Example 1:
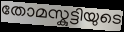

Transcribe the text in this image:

തോമസ്കുട്ടിയുടെ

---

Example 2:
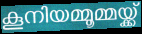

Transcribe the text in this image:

കൂനിയമ്മൂമ്മയ്ക്ക്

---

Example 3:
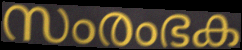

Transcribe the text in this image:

സംരംഭക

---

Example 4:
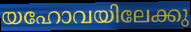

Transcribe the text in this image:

യഹോവയിലേക്കു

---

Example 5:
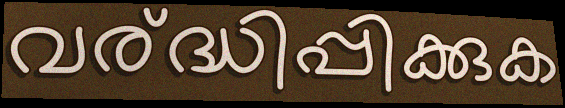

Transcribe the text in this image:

വര്ദ്ധിപ്പിക്കുക